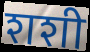
शशी